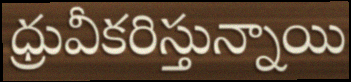
ధ్రువీకరిస్తున్నాయి